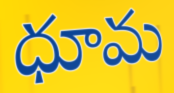
ధూమ